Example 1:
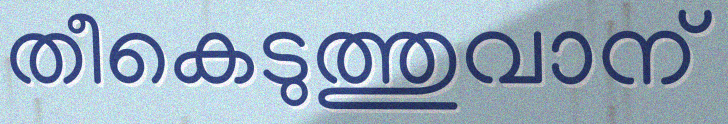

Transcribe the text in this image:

തീകെടുത്തുവാന്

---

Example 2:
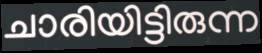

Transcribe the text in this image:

ചാരിയിട്ടിരുന്ന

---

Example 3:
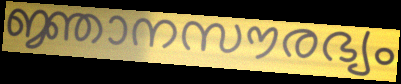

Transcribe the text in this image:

ജ്ഞാനസൗരഭ്യം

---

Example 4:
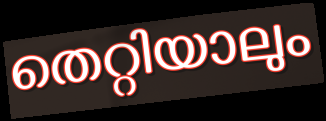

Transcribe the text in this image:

തെറ്റിയാലും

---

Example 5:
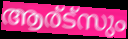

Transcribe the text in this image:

ആര്ട്സും